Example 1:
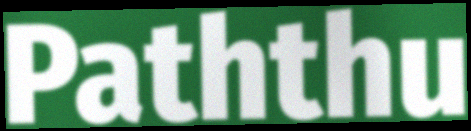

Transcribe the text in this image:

Paththu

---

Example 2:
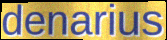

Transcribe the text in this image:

denarius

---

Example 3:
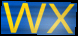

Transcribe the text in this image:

wx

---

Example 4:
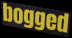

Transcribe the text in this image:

bogged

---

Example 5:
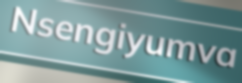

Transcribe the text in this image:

Nsengiyumva